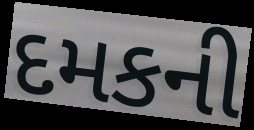
દમકની